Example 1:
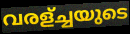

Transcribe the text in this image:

വരള്ച്ചയുടെ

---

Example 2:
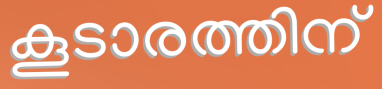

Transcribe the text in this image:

കൂടാരത്തിന്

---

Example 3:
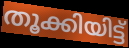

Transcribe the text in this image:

തൂക്കിയിട്ട്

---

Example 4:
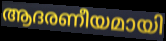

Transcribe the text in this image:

ആദരണീയമായി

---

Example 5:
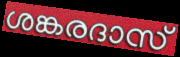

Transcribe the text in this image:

ശങ്കരദാസ്